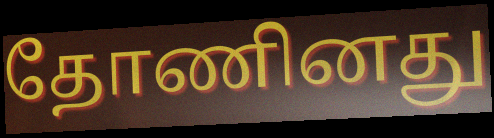
தோணினது